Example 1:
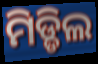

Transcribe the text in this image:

ମିଡ୍ଡିଲ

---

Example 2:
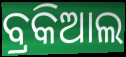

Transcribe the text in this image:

ବ୍ରକିଆଲ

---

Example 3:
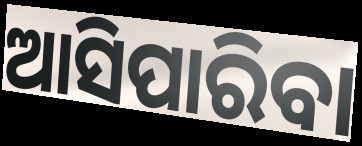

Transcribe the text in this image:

ଆସିପାରିବା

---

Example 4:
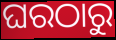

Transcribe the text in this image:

ଘରଠାରୁ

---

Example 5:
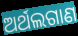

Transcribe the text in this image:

ଅର୍ଥଲଗାଣ